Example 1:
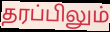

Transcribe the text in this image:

தரப்பிலும்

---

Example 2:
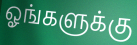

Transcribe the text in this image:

ஓங்களுக்கு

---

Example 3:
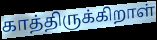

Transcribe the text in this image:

காத்திருக்கிறாள்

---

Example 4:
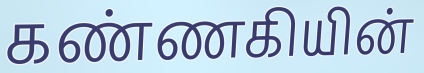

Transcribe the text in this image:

கண்ணகியின்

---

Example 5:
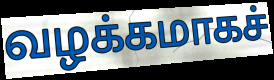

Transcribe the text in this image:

வழக்கமாகச்